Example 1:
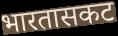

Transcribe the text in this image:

भारतासकट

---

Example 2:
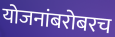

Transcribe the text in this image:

योजनांबरोबरच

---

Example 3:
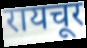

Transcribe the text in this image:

रायचूर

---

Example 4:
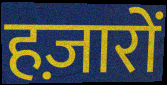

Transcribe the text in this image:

हज़ारों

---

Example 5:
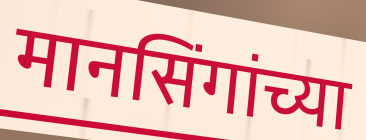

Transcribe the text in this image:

मानसिंगांच्या